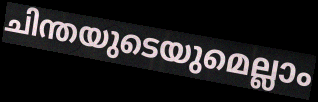
ചിന്തയുടെയുമെല്ലാം